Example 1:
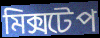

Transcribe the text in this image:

মিক্সটেপ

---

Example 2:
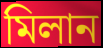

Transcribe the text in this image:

মিলান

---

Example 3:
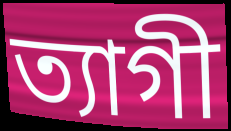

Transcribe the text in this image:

ত্যাগী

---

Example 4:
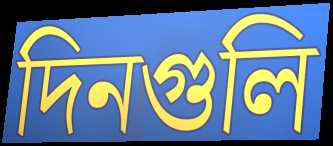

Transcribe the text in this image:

দিনগুলি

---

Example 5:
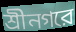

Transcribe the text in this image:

শ্রীনগরে